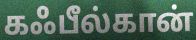
கஃபீல்கான்